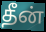
தீன்